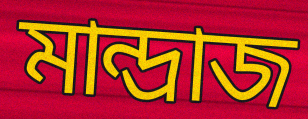
মান্দ্রাজ